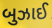
બુઝાઈ